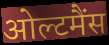
ओल्टमैंस